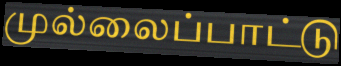
முல்லைப்பாட்டு